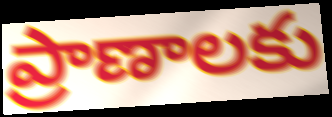
ప్రాణాలకు